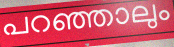
പറഞ്ഞാലും